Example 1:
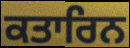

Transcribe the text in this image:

ਕਤਾਰਿਨ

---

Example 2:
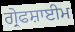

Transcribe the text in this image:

ਗ੍ਰੇਫਸ਼ਾਈਮ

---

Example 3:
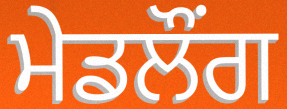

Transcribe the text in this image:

ਮੇਡਲੌਂਗ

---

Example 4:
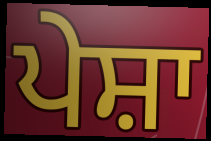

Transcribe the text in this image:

ਪੇਸ਼ਾ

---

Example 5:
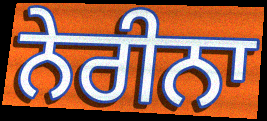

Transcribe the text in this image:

ਨੇਰੀਨਾ